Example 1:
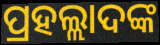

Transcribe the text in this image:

ପ୍ରହଲ୍ଲାଦଙ୍କ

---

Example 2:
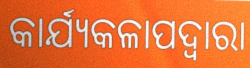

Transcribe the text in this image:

କାର୍ଯ୍ୟକଳାପଦ୍ୱାରା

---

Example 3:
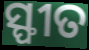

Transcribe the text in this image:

ସ୍ଫୀତ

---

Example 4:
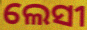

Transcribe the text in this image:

ଲେସୀ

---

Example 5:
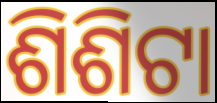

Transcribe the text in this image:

ଶିଶିଟା